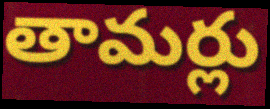
తామర్లు